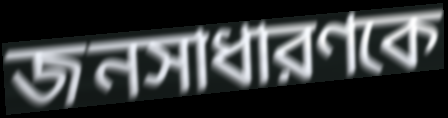
জনসাধারণকে